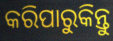
କରିପାରୁକିନ୍ତୁ